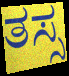
ತಸ್ಸ